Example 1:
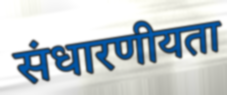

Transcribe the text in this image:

संधारणीयता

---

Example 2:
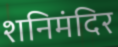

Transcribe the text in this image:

शनिमंदिर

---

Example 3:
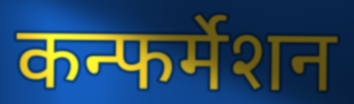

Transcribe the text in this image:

कन्फर्मेशन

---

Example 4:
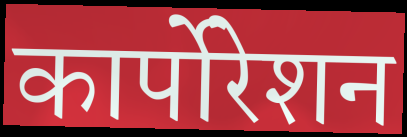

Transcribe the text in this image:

कार्पोरेशन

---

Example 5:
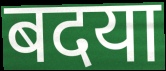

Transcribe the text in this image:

बदया